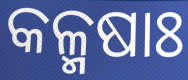
କଳ୍ମଷାଃ